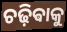
ଚଢ଼ିଵାକୁ